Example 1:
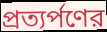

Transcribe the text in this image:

প্রত্যর্পণের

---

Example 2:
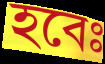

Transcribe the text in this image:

হবেঃ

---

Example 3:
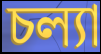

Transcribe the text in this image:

চল্যা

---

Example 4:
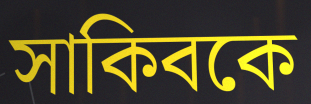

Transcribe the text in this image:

সাকিবকে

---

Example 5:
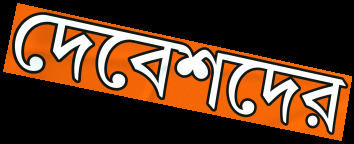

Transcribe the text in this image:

দেবেশদের